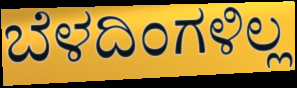
ಬೆಳದಿಂಗಳಿಲ್ಲ